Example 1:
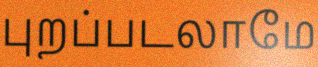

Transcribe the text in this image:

புறப்படலாமே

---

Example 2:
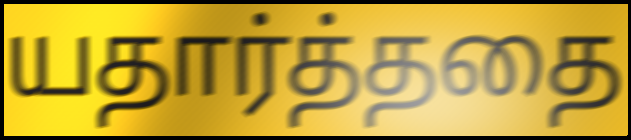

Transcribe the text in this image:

யதார்த்ததை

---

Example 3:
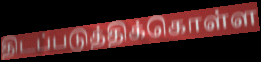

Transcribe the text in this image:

திடப்படுத்திக்கொள்ள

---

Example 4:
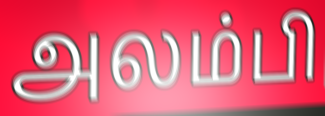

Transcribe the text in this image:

அலம்பி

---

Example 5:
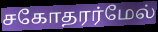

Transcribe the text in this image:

சகோதரர்மேல்